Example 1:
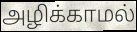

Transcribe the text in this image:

அழிக்காமல்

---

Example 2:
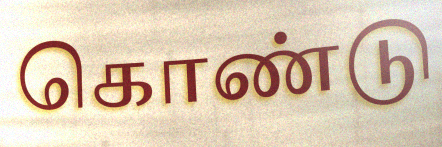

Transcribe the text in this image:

கொண்டு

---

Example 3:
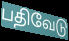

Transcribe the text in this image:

பதிவேடு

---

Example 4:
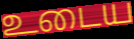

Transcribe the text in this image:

உடைய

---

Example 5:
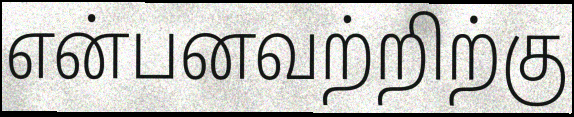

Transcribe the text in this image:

என்பனவற்றிற்கு